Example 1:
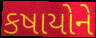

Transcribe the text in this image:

કષાયોને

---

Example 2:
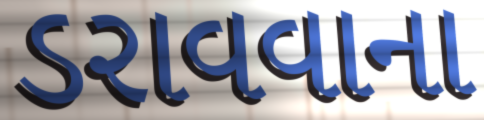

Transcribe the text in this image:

ડરાવવાના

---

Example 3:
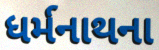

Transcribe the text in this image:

ધર્મનાથના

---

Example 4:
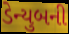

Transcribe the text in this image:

ડેન્યુબની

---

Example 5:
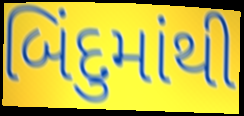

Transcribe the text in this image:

બિંદુમાંથી